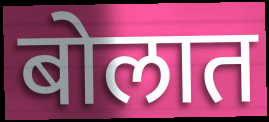
बोलात